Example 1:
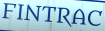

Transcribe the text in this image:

FINTRAC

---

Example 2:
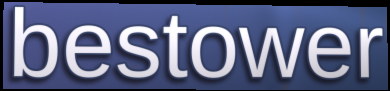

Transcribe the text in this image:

bestower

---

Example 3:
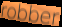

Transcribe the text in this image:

robber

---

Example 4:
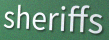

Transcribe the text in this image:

sheriffs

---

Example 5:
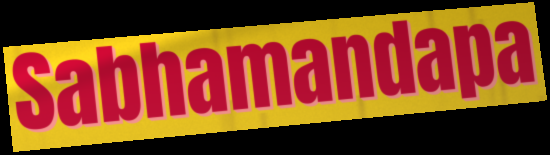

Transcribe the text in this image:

Sabhamandapa